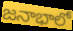
జనాభాలో